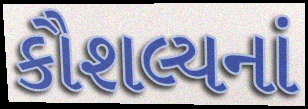
કૌશલ્યનાં